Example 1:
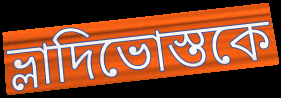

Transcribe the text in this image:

ভ্লাদিভোস্তকে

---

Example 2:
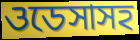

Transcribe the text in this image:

ওডেসাসহ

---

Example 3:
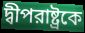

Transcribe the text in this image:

দ্বীপরাষ্ট্রকে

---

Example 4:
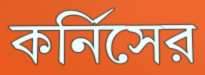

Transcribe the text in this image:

কর্নিসের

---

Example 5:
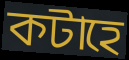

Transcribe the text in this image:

কটাহে